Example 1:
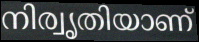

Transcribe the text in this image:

നിര്വൃതിയാണ്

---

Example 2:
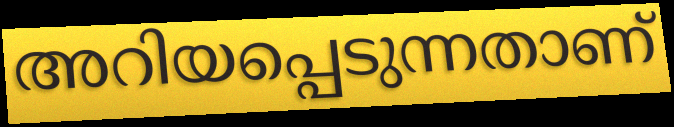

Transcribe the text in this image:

അറിയപ്പെടുന്നതാണ്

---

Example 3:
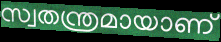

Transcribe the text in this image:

സ്വതന്ത്രമായാണ്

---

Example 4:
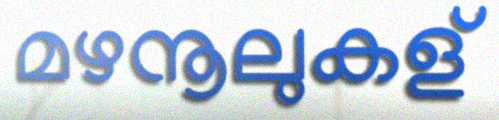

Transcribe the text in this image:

മഴനൂലുകള്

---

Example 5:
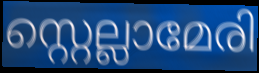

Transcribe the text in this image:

സ്റ്റെല്ലാമേരി